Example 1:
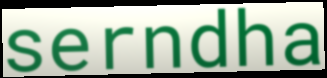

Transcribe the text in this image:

serndha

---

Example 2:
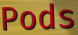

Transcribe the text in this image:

Pods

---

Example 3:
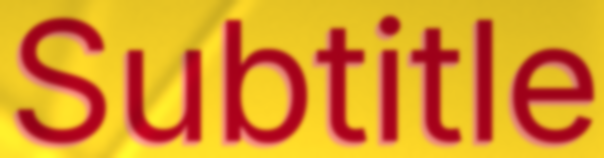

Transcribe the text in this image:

Subtitle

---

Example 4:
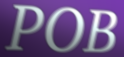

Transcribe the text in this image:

POB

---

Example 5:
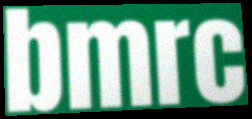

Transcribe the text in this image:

bmrc